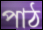
পাঠ